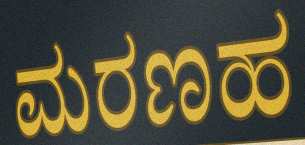
ಮರಣಹ